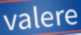
valere